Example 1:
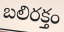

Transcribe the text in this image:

బలిరక్తం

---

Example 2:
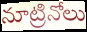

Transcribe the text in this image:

నూట్రినోలు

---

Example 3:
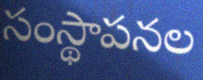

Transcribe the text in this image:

సంస్థాపనల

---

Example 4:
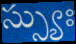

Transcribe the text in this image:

స్స్యుః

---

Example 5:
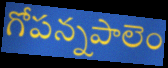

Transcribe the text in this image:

గోపన్నపాలెం